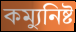
কম্যুনিষ্ট